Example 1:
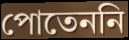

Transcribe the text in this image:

পোতেননি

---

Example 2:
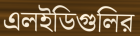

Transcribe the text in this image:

এলইডিগুলির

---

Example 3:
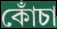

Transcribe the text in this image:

কোঁচা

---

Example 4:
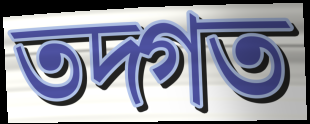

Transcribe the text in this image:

তদ্গত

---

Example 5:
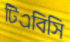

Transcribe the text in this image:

টিএবিসি